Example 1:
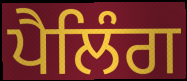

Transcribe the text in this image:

ਪੈਲਿੰਗ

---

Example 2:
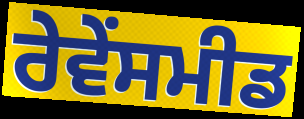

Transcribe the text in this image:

ਰੇਵੇਂਸਮੀਡ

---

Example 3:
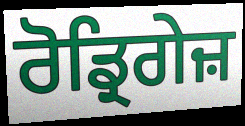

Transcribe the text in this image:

ਰੋਡ੍ਰਿਗੇਜ਼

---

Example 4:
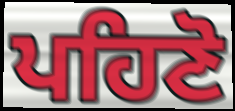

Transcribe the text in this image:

ਪਹਿਣੋ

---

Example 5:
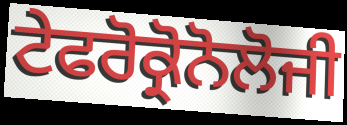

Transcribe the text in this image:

ਟੇਫਰੋਕ੍ਰੋਨੋਲੋਜੀ